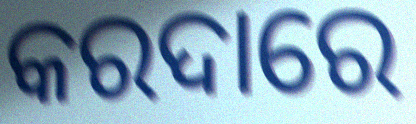
କରଦାରେ